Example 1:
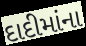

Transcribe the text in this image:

દાદીમાંના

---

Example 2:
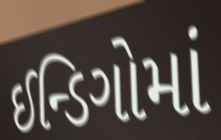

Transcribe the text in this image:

ઈન્ડિગોમાં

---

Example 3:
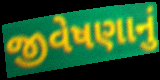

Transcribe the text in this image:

જીવેષણાનું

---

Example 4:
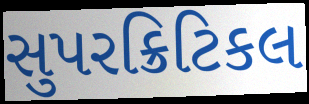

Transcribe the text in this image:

સુપરક્રિટિકલ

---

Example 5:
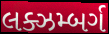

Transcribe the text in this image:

લક્ઝમ્બર્ગ